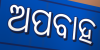
ଅପବାହ